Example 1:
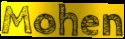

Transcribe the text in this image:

Mohen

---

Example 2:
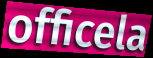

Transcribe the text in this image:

officela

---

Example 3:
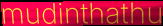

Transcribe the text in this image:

mudinthathu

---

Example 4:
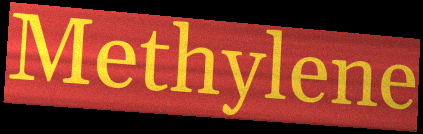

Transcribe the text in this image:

Methylene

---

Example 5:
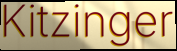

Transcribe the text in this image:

Kitzinger